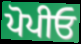
ਪੋਪੀਓ